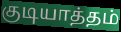
குடியாத்தம்